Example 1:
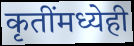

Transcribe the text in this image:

कृतींमध्येही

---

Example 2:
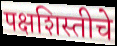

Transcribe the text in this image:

पक्षशिस्तीचे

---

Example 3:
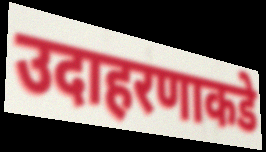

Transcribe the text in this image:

उदाहरणाकडे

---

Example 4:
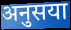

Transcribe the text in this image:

अनुसया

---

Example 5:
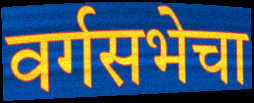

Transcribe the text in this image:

वर्गसभेचा